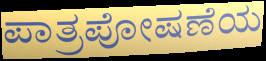
ಪಾತ್ರಪೋಷಣೆಯ